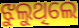
ଝୁଲୁଥିଲେ